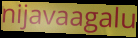
nijavaagalu